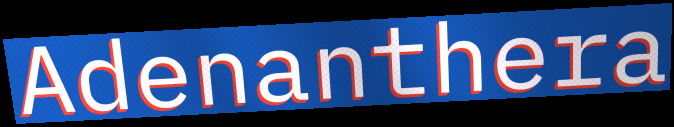
Adenanthera